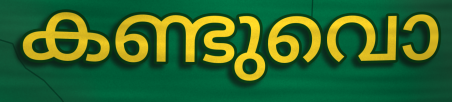
കണ്ടുവൊ